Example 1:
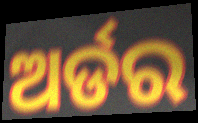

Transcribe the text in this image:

ଅର୍ଡର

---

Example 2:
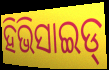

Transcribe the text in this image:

ହିଭିସାଇଡ୍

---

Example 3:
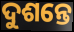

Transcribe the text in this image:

ଦୁଶନ୍ତେ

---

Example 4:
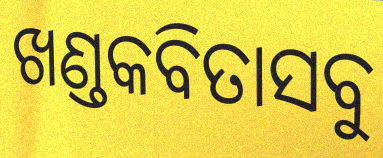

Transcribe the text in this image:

ଖଣ୍ଡକବିତାସବୁ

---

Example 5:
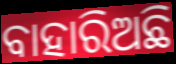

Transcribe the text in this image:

ବାହାରିଅଛି